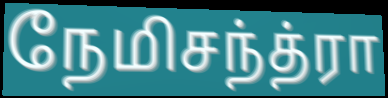
நேமிசந்த்ரா